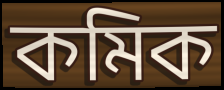
কমিক